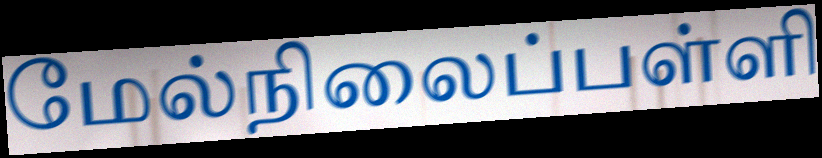
மேல்நிலைப்பள்ளி